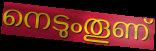
നെടുംതൂണ്